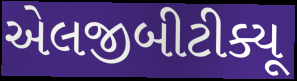
એલજીબીટીક્યૂ